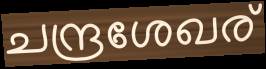
ചന്ദ്രശേഖര്